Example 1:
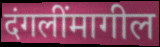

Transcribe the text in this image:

दंगलींमागील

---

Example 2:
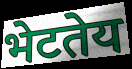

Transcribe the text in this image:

भेटतेय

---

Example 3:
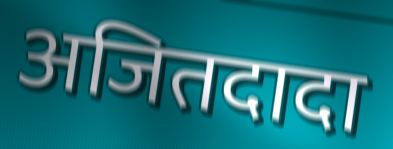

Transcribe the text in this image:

अजितदादा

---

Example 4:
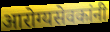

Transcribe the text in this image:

आरोग्यसेवकांनी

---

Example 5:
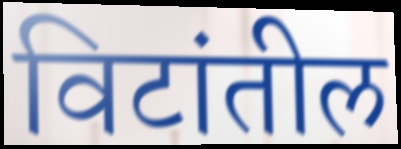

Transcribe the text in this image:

विटांतील